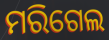
ମରିଗେଲ